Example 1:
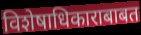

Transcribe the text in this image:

विशेषाधिकाराबाबत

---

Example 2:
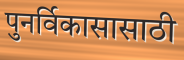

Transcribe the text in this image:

पुनर्विकासासाठी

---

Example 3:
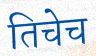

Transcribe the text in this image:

तिचेच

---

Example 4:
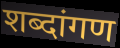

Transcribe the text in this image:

शब्दांगण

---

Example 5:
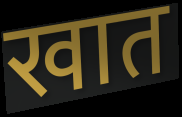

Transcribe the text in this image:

खात